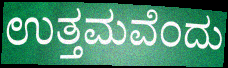
ಉತ್ತಮವೆಂದು